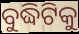
ବୁଦ୍ଧିଟିକୁ